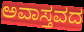
ಅವಾಸ್ತವದ